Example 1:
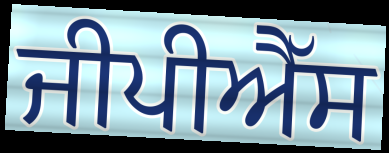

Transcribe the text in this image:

ਜੀਪੀਐੱਸ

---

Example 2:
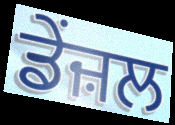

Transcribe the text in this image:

ਡੇਂਜ਼ਲ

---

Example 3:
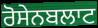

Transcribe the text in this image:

ਰੋਸੇਨਬਲਾਟ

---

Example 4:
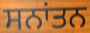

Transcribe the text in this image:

ਸਨਾਂਤਨ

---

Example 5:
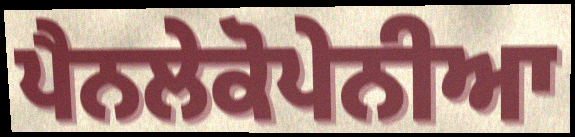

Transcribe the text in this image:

ਪੈਨਲੇਕੋਪੇਨੀਆ